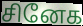
சினேக